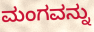
ಮಂಗವನ್ನು